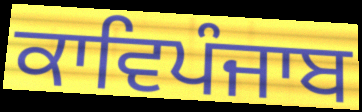
ਕਾਵਿਪੰਜਾਬ